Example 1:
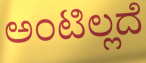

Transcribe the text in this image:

ಅಂಟಿಲ್ಲದೆ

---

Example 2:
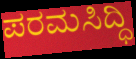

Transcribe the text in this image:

ಪರಮಸಿದ್ಧಿ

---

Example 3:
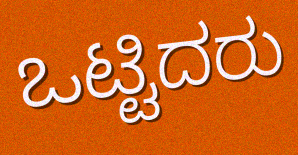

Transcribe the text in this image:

ಒಟ್ಟಿದರು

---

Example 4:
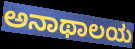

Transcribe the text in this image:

ಅನಾಥಾಲಯ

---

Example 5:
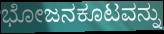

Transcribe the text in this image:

ಭೋಜನಕೂಟವನ್ನು